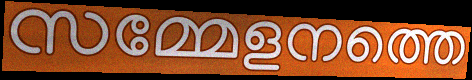
സമ്മേളനത്തെ